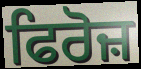
ਫਿਰੋਜ਼